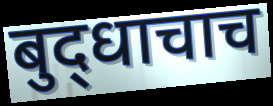
बुद्धाचाच